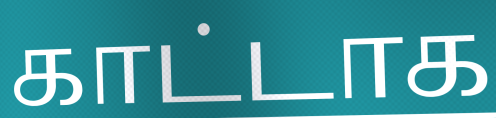
காட்டாக